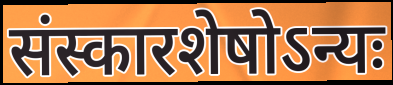
संस्कारशेषोऽन्यः